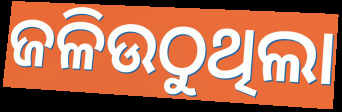
ଜଳିଉଠୁଥିଲା